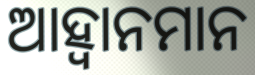
ଆହ୍ୱାନମାନ